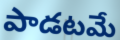
పాడటమే